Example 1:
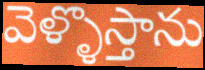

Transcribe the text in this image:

వెళ్ళొస్తాను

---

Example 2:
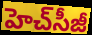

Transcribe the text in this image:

హెచ్‌సీజీ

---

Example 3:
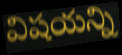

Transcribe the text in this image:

విషయన్ని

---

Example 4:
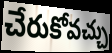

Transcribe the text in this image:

చేరుకోవచ్చు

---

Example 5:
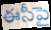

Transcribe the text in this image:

ఈసీపై